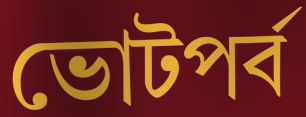
ভোটপর্ব